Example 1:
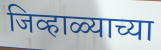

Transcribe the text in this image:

जिव्हाळ्याच्या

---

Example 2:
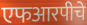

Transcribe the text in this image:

एफआरपीचे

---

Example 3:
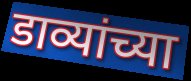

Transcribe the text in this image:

डाव्यांच्या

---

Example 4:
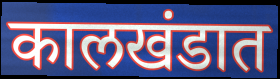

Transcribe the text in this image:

कालखंडात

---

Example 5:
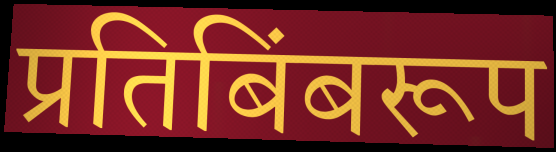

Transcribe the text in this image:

प्रतिबिंबरूप